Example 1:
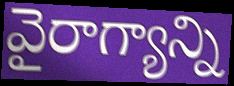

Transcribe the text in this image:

వైరాగ్యాన్ని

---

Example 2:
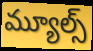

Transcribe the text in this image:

మ్యూల్స్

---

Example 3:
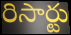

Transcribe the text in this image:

రిసార్టు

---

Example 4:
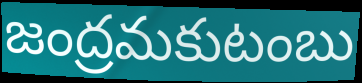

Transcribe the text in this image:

జంద్రమకుటంబు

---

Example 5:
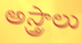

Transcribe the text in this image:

అస్త్రాలు